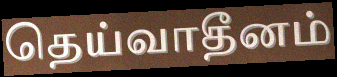
தெய்வாதீனம்